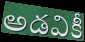
అడవికీ